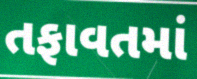
તફાવતમાં